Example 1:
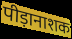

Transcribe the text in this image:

पीड़ानाशक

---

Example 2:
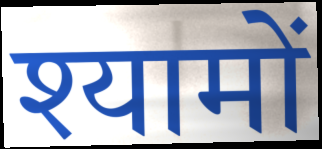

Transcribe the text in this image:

श्यामों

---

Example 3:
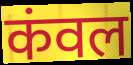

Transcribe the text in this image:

कंवल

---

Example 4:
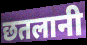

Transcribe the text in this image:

छतलानी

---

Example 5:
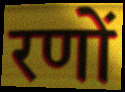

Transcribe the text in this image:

रणों